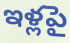
ఇళ్లపై